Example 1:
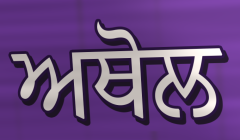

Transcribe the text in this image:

ਅਥੋਲ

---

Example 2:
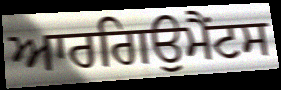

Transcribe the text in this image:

ਆਰਗਿਉਮੈਂਟਸ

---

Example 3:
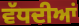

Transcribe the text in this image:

ਵੱਧਦੀਆਂ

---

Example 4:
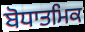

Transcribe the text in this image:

ਬੋਧਾਤਮਿਕ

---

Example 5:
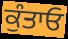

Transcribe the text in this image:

ਕੁੰਤਾਓ